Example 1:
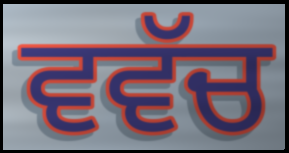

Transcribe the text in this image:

ਵਵੱਚ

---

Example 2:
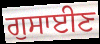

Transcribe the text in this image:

ਗੁਸਾਈਣ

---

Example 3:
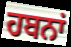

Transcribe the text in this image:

ਹਬਨਾਂ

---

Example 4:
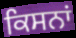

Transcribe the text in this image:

ਕਿਸਨਾਂ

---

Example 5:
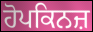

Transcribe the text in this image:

ਹੋਪਕਿਨਜ਼